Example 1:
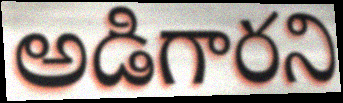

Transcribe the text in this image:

అడిగారని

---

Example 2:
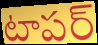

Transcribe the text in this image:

టాపర్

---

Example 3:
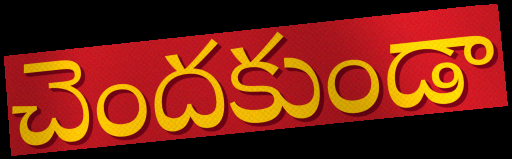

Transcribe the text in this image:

చెందకుండా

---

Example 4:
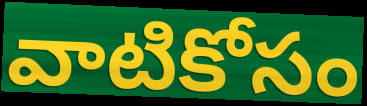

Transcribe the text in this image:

వాటికోసం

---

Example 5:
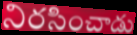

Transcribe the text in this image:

నిరసించాడు